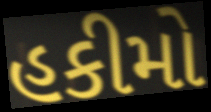
હકીમો